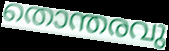
തൊന്തരവു